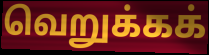
வெறுக்கக்